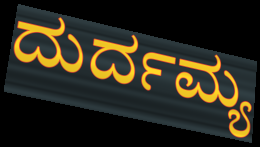
ದುರ್ದಮ್ಯ